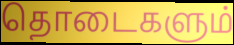
தொடைகளும்